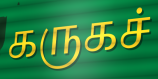
கருகச்